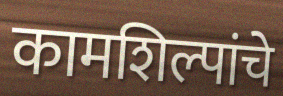
कामशिल्पांचे